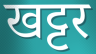
खट्टर